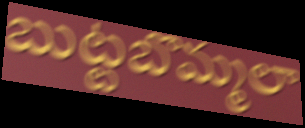
బుట్టబొమ్మలా